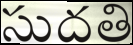
సుదతి